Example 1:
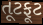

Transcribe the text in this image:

તૂટફૂટ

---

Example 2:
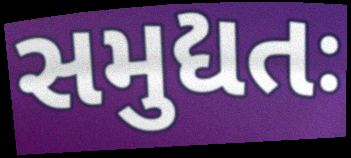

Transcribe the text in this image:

સમુદ્યતઃ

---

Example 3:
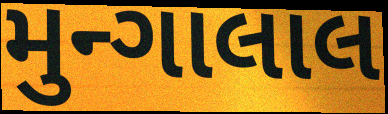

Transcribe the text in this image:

મુન્ગાલાલ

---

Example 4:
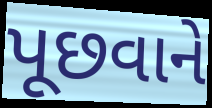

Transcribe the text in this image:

પૂછવાને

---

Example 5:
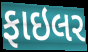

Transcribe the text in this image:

ફાઇલર